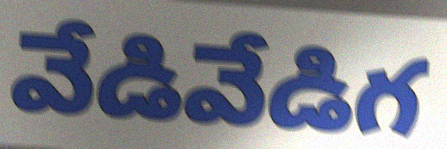
వేడివేడిగ